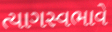
ત્યાગસ્વભાવે